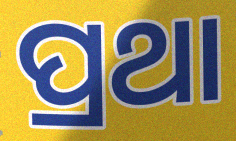
ପ୍ରଥା